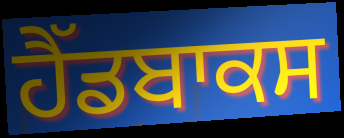
ਹੈੱਡਬਾਕਸ